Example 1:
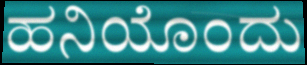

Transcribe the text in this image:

ಹನಿಯೊಂದು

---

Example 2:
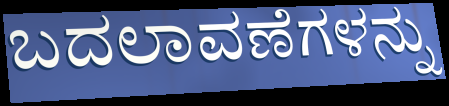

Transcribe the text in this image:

ಬದಲಾವಣೆಗಳನ್ನು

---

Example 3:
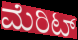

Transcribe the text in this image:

ಮೆರಿಟ್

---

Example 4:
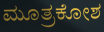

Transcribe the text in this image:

ಮೂತ್ರಕೋಶ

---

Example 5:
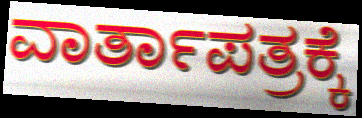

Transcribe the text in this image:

ವಾರ್ತಾಪತ್ರಕ್ಕೆ